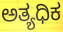
ಅತ್ಯಧಿಕ